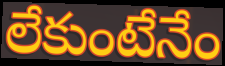
లేకుంటేనేం